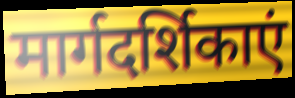
मार्गदर्शिकाएं